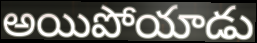
అయిపోయాడు